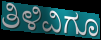
ತಿಳಿವಿಗೂ